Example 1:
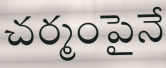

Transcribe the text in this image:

చర్మంపైనే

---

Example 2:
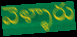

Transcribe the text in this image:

వెళ్ళారు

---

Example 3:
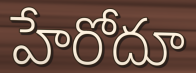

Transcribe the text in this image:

హేరోదూ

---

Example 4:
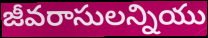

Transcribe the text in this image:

జీవరాసులన్నియు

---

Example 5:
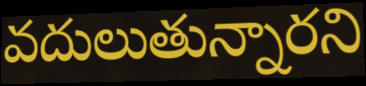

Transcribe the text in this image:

వదులుతున్నారని